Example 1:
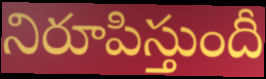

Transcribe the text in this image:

నిరూపిస్తుందీ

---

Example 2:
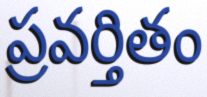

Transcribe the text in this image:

ప్రవర్తితం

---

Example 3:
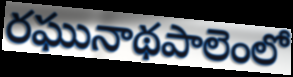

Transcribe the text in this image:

రఘునాథపాలెంలో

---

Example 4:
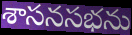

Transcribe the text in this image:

శాసనసభను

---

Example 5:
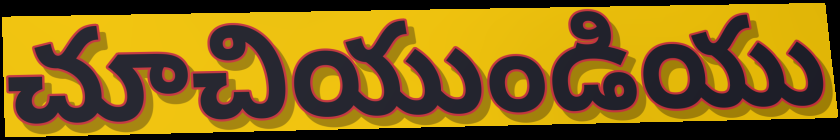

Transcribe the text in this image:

చూచియుండియు